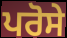
ਪਰੋਸੇ